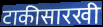
टाकीसारखी